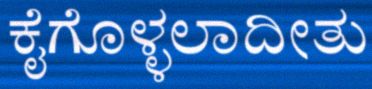
ಕೈಗೊಳ್ಳಲಾದೀತು